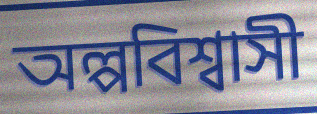
অল্পবিশ্বাসী